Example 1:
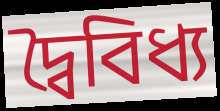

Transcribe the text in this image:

দ্বৈবিধ্য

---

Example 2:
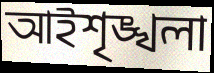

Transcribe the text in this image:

আইশৃঙ্খলা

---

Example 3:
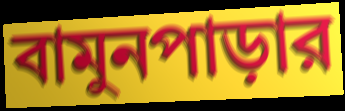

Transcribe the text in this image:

বামুনপাড়ার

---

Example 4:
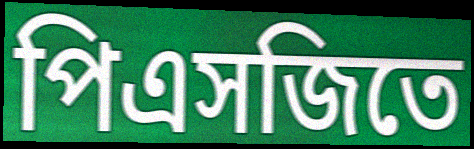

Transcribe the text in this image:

পিএসজিতে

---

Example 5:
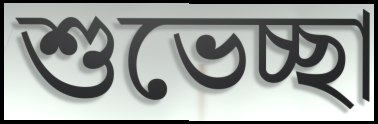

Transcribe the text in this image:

শুভেচ্ছা